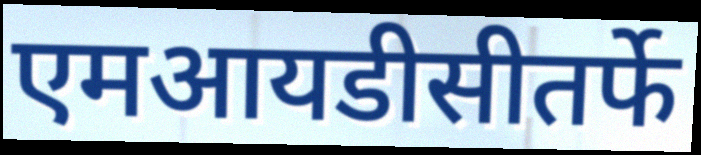
एमआयडीसीतर्फे